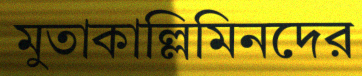
মুতাকাল্লিমিনদের